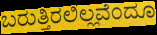
ಬರುತ್ತಿರಲಿಲ್ಲವೆಂದೂ